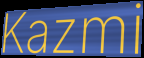
Kazmi